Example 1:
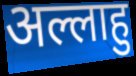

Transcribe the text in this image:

अल्लाहु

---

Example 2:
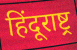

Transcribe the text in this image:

हिंदूराष्ट्र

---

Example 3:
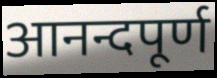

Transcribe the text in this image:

आनन्दपूर्ण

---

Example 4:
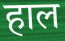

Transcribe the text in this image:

हाल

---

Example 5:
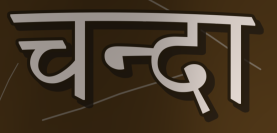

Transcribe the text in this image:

चन्दा